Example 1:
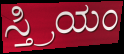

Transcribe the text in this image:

ಸ್ತ್ರಿಯಂ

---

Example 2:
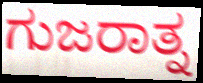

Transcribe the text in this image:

ಗುಜರಾತ್ನ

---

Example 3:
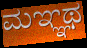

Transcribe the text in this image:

ಮಞ್ಞಥ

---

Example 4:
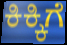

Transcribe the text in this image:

ಕಿಕ್ಕಿಗೆ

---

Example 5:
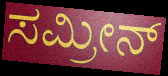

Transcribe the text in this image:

ಸಮ್ರೀನ್